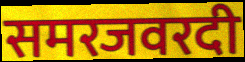
समरजवरदी